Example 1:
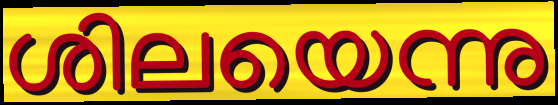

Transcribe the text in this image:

ശിലയെന്നു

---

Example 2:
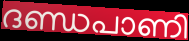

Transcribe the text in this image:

ദണ്ഡപാണി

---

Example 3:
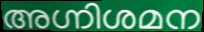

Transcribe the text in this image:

അഗ്നിശമന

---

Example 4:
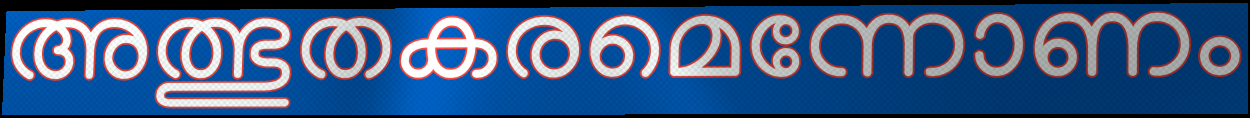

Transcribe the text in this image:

അത്ഭുതകരമെന്നോണം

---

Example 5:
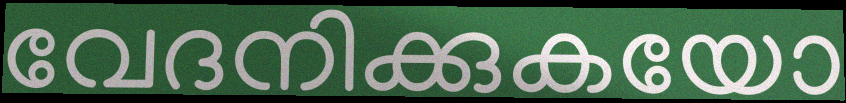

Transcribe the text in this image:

വേദനിക്കുകയോ